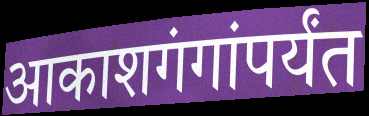
आकाशगंगांपर्यंत